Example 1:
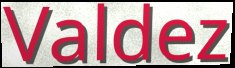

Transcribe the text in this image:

Valdez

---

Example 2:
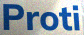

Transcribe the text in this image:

Proti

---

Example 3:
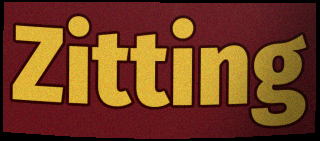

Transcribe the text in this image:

Zitting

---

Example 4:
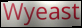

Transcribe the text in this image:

Wyeast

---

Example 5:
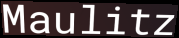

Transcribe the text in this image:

Maulitz